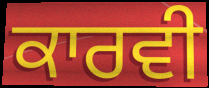
ਕਾਰਵੀ